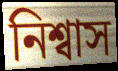
নিশ্বাস